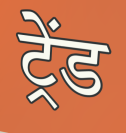
ट्रेंड